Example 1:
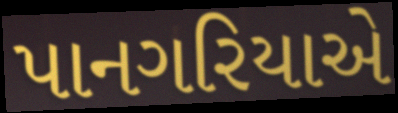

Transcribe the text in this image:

પાનગરિયાએ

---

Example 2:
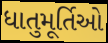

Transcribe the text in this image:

ધાતુમૂર્તિઓ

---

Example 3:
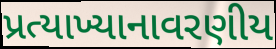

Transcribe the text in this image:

પ્રત્યાખ્યાનાવરણીય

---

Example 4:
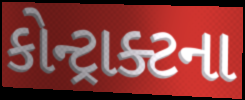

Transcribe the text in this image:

કોન્ટ્રાક્ટના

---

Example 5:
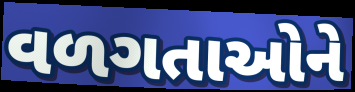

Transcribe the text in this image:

વળગતાઓને